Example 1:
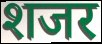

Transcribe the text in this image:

शजर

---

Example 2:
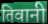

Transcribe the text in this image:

तिवानी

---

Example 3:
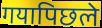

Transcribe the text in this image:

गयापिछले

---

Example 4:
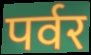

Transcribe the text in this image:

पर्वर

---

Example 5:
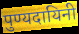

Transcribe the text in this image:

पुण्यदायिनी